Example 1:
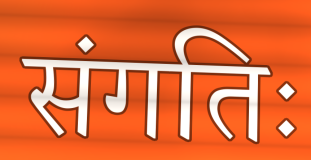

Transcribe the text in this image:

संगतिः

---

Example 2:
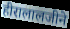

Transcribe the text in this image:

हीरालालजीने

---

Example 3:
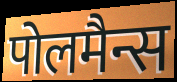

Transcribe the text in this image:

पोलमैन्स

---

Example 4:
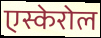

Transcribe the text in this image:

एस्केरोल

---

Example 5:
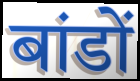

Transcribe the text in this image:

बांडों